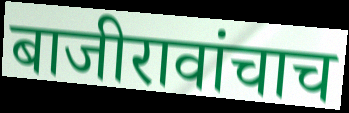
बाजीरावांचाच